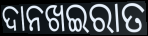
ଦାନଖଇରାତ